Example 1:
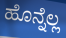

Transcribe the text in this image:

ಹೊನ್ನೆಲ್ಲ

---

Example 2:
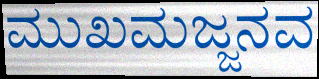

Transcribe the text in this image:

ಮುಖಮಜ್ಜನವ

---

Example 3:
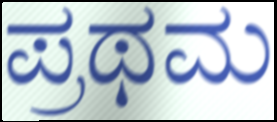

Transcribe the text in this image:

ಪ್ರಥಮ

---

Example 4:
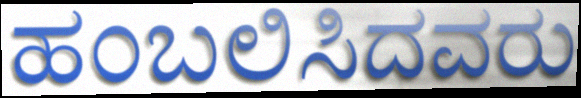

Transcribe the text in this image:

ಹಂಬಲಿಸಿದವರು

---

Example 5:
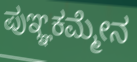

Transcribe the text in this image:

ಪುಞ್ಞಕಮ್ಮೇನ